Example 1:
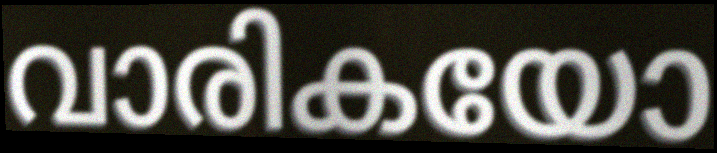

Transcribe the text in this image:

വാരികയോ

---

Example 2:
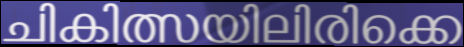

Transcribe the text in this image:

ചികിത്സയിലിരിക്കെ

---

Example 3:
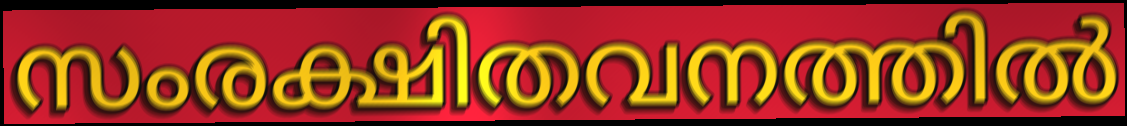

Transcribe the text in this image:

സംരക്ഷിതവനത്തിൽ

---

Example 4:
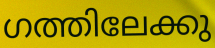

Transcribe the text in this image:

ഗത്തിലേക്കു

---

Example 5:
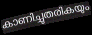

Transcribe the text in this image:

കാണിച്ചുതരികയും